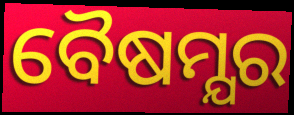
ବୈଷମ୍ଯର